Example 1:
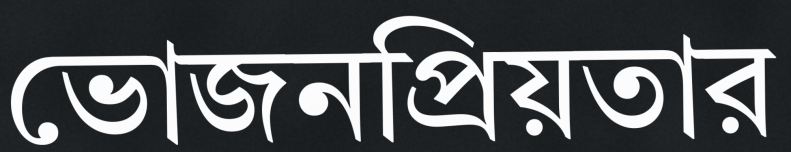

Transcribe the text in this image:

ভোজনপ্রিয়তার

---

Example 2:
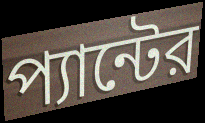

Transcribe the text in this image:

প্যান্টের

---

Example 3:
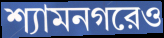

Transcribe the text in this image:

শ্যামনগরেও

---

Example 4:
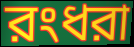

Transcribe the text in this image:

রংধরা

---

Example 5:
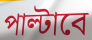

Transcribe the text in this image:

পাল্টাবে